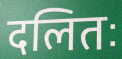
दलितः